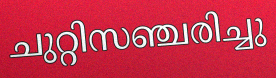
ചുറ്റിസഞ്ചരിച്ചു